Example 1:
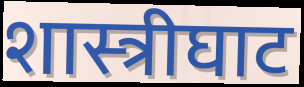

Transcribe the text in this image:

शास्त्रीघाट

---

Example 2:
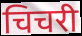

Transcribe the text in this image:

चिचरी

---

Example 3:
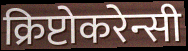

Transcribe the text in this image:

क्रिप्टोकरेन्सी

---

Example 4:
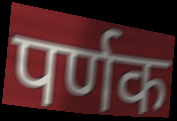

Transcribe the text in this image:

पर्णक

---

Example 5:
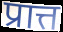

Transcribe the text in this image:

प्रात्त